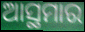
ଆସ୍ଥମାର